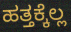
ಹತ್ತಕ್ಕೆಲ್ಲ